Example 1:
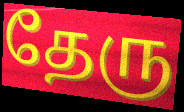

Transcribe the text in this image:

தேரு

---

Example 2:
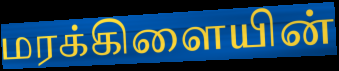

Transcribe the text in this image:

மரக்கிளையின்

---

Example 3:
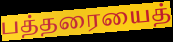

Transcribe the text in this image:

பத்தரையைத்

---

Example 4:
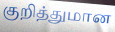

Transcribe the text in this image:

குறித்துமான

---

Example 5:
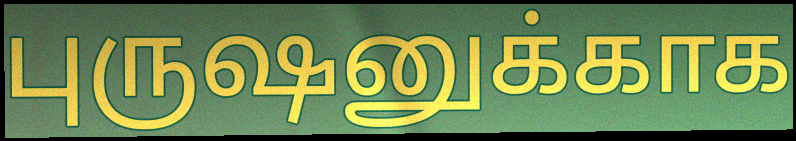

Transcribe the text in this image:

புருஷனுக்காக